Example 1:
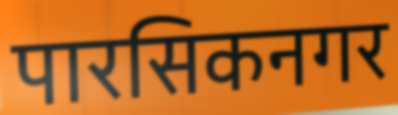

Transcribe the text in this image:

पारसिकनगर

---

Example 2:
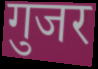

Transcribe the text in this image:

गुजर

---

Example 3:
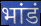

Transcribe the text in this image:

भांडं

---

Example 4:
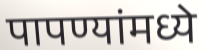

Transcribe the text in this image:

पापण्यांमध्ये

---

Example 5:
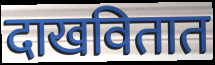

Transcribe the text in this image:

दाखवितात